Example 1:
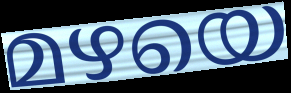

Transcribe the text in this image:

മഴയെ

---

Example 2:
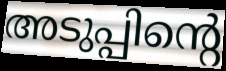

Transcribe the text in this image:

അടുപ്പിന്റെ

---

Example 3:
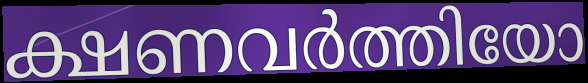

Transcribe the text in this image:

ക്ഷണവർത്തിയോ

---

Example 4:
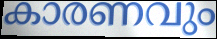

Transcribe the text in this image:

കാരണവും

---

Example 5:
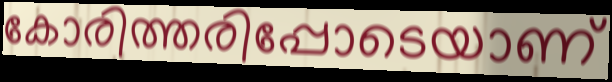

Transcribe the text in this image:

കോരിത്തരിപ്പോടെയാണ്